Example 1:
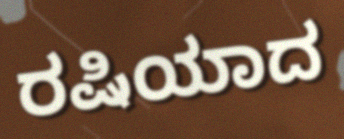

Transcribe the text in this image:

ರಷಿಯಾದ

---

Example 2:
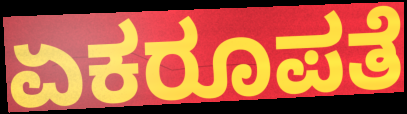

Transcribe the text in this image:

ಏಕರೂಪತೆ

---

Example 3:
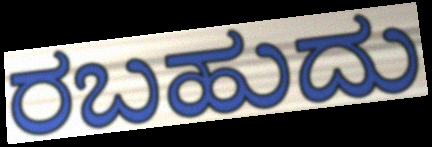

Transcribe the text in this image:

ರಬಹುದು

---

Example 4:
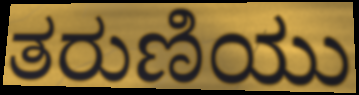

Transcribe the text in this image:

ತರುಣಿಯು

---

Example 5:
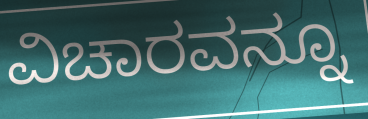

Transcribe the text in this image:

ವಿಚಾರವನ್ನೂ